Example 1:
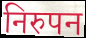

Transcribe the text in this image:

निरुपन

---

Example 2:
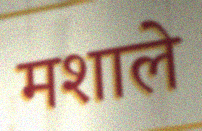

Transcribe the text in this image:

मशाले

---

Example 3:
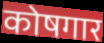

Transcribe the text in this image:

कोषगार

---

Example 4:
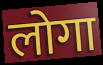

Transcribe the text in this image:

लोगा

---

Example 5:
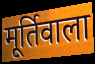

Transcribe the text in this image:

मूर्तिवाला